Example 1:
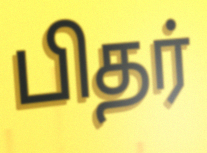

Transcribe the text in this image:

பிதர்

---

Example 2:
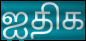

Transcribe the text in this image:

ஐதிக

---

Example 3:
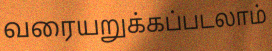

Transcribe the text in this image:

வரையறுக்கப்படலாம்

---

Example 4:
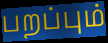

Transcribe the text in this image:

பறப்பும்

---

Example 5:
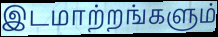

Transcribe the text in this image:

இடமாற்றங்களும்